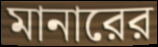
মানারের